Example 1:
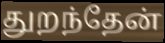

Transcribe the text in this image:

துறந்தேன்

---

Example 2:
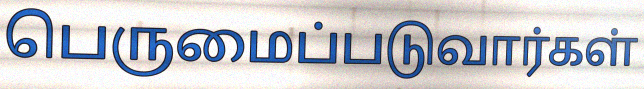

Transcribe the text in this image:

பெருமைப்படுவார்கள்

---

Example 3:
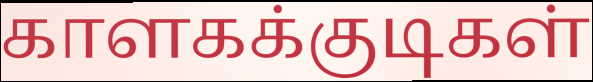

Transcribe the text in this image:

காளகக்குடிகள்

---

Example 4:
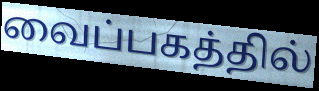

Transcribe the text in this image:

வைப்பகத்தில்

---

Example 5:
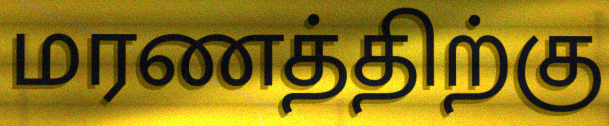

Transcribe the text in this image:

மரணத்திற்கு